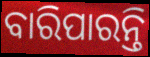
ବାରିପାରନ୍ତି